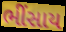
ભીંસાય